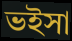
ভইসা